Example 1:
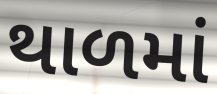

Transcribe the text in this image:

થાળમાં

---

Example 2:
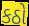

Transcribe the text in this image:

કઠો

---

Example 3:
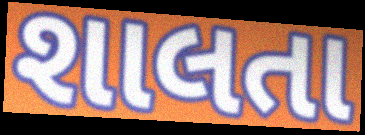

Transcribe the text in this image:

શાલતા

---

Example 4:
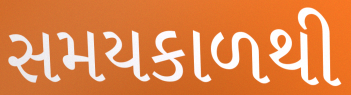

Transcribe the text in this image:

સમયકાળથી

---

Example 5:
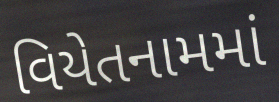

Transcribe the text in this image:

વિયેતનામમાં